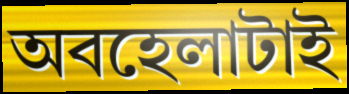
অবহেলাটাই